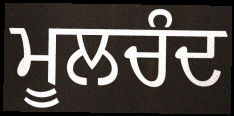
ਮੂਲਚੰਦ